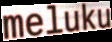
meluku